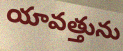
యావత్తును